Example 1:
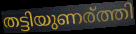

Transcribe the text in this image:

തട്ടിയുണര്ത്തി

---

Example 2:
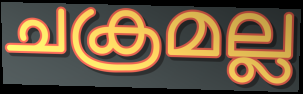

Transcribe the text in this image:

ചക്രമല്ല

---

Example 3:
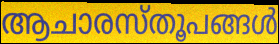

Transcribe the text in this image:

ആചാരസ്തൂപങ്ങൾ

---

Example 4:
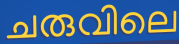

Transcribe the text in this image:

ചരുവിലെ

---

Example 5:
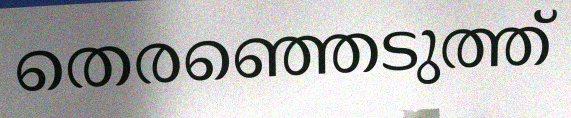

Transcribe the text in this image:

തെരഞ്ഞെടുത്ത്